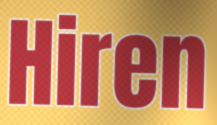
Hiren